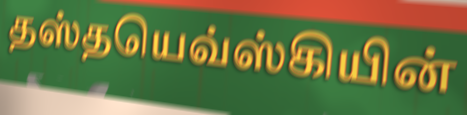
தஸ்தயெவ்ஸ்கியின்